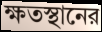
ক্ষতস্থানের